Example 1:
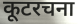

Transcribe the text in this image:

कूटरचना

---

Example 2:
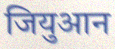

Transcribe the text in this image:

जियुआन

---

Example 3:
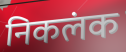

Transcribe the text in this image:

निकलंक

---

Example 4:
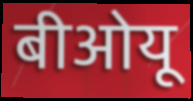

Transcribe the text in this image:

बीओयू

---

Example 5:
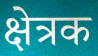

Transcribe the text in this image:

क्षेत्रक